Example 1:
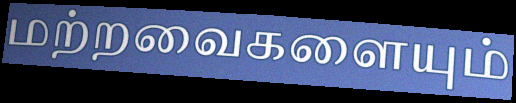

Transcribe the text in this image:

மற்றவைகளையும்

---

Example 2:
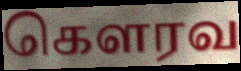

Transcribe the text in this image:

கெளரவ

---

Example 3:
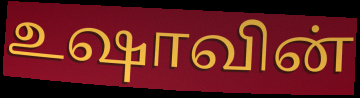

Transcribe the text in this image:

உஷாவின்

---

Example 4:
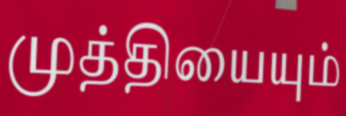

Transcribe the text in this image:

முத்தியையும்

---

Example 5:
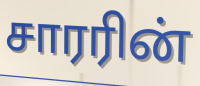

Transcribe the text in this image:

சாரரின்